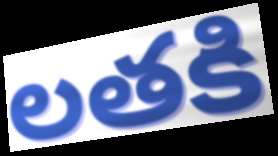
లతకి